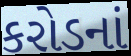
કરોડનાં